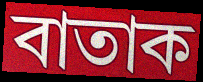
বাতাক